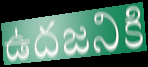
ఉదజనికి